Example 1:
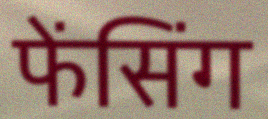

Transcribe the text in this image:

फेंसिंग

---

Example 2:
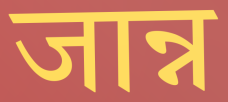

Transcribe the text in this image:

जान्न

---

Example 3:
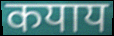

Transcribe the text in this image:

कयाय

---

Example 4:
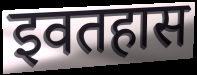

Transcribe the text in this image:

इवतहास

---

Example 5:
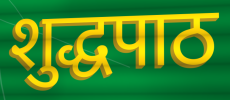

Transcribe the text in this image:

शुद्धपाठ